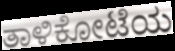
ತಾಳಿಕೋಟೆಯ